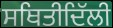
ਸਥਿਤੀਦਿੱਲੀ